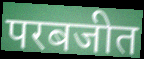
परबजीत